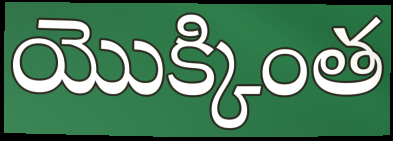
యొక్కింత